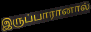
இருப்பாரானால்